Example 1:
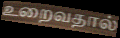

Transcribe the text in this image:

உறைவதால்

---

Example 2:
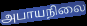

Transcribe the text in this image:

அபாயநிலை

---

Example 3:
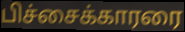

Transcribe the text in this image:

பிச்சைக்காரரை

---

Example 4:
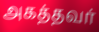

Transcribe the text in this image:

அகத்தவர்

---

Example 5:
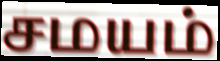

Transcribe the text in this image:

சமயம்